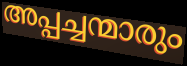
അപ്പച്ചന്മാരും